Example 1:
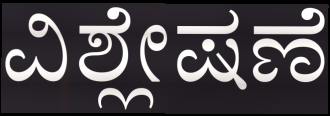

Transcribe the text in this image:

ವಿಶ್ಲೇಷಣೆ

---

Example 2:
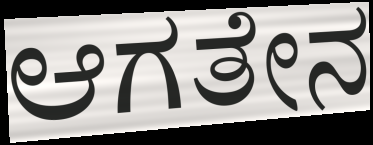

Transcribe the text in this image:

ಆಗತೇನ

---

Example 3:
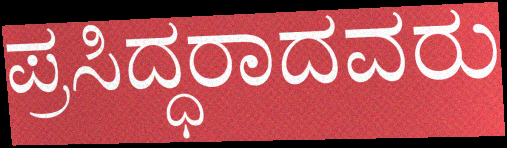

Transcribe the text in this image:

ಪ್ರಸಿದ್ಧರಾದವರು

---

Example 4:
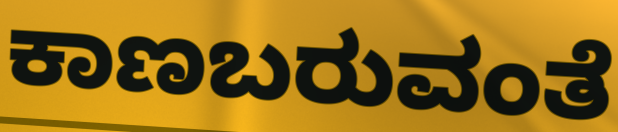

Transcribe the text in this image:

ಕಾಣಬರುವಂತೆ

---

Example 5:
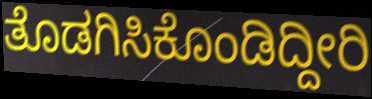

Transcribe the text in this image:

ತೊಡಗಿಸಿಕೊಂಡಿದ್ದೀರಿ